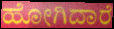
ಹೋಗಿದಾರೆ